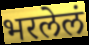
भरलेलं